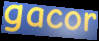
gacor